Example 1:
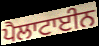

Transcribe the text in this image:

ਪੈਲਾਟਾਈਨ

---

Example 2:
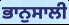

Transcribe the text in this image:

ਭਾਨੁਸਾਲੀ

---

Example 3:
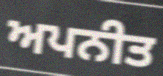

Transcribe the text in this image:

ਅਪਨੀਤ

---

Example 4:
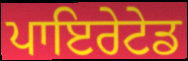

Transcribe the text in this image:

ਪਾਇਰੇਟੇਡ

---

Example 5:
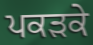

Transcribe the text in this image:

ਪਕੜਕੇ